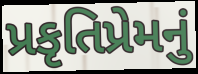
પ્રકૃતિપ્રેમનું